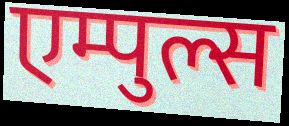
एम्पुल्स